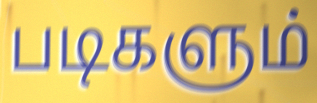
படிகளும்